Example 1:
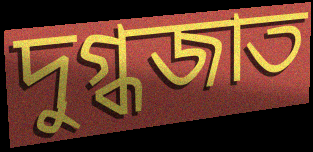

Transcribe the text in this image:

দুগ্ধজাত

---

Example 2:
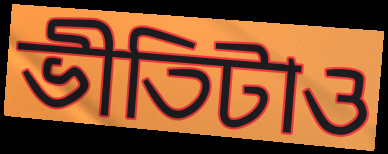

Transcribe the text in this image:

ভীতিটাও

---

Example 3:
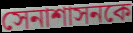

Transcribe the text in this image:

সেনাশাসনকে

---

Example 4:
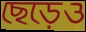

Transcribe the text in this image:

ছেড়েও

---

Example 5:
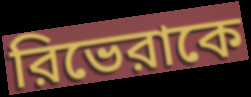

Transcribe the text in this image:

রিভেরাকে